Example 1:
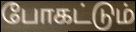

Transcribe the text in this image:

போகட்டும்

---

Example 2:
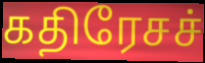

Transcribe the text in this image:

கதிரேசச்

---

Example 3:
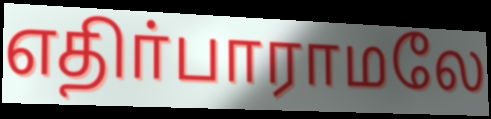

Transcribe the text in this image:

எதிர்பாராமலே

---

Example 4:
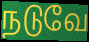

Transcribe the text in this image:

நடுவே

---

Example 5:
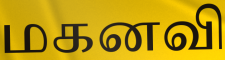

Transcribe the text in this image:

மகனவி